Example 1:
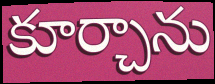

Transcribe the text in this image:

కూర్చాను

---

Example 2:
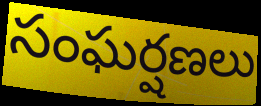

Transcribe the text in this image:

సంఘర్షణలు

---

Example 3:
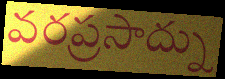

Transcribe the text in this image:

వరప్రసాద్ను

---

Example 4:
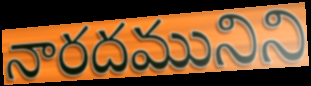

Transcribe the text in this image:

నారదమునిని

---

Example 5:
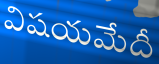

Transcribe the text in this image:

విషయమేదీ